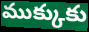
ముక్కుకు